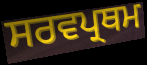
ਸਰਵਪ੍ਰਥਮ